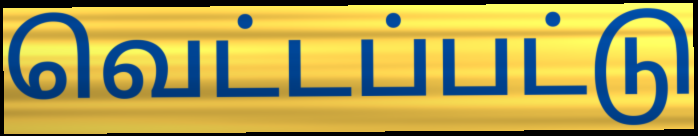
வெட்டப்பட்டு